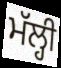
ਮੱਲ੍ਹੀ